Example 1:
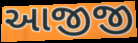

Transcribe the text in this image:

આજીજી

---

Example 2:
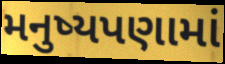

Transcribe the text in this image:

મનુષ્યપણામાં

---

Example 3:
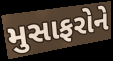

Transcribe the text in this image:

મુસાફરોને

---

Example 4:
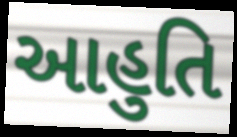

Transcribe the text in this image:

આહુતિ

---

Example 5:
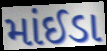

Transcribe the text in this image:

માંઈડા